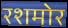
रशमोर